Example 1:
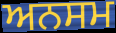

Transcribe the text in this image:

ਅਨਸਮ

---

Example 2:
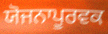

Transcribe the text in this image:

ਯੋਜਨਾਪੂਰਵਕ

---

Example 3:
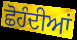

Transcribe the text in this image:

ਛੋਹੰਦੀਆਂ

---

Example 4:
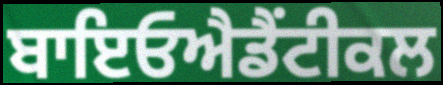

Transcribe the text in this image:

ਬਾਇਓਐਡੈਂਟੀਕਲ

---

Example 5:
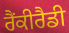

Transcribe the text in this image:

ਰੈਂਕੀਰੈਡੀ